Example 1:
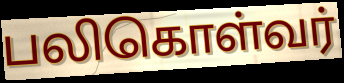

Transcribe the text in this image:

பலிகொள்வர்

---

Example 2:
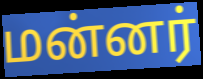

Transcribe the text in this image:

மன்னர்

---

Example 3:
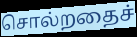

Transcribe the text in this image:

சொல்றதைச்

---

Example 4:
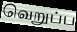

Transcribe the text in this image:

வெறுப்ப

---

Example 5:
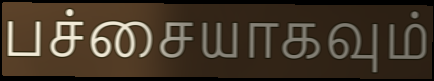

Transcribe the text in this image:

பச்சையாகவும்